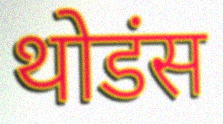
थोडंस